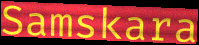
Samskara